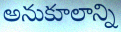
అనుకూలాన్ని